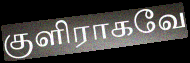
குளிராகவே